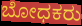
ಬೋಧಕರು